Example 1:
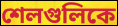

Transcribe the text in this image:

শেলগুলিকে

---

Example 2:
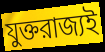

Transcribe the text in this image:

যুক্তরাজ্যই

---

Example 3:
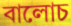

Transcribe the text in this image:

বালোচ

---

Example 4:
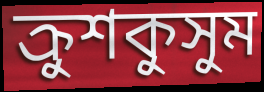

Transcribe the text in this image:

ক্রুশকুসুম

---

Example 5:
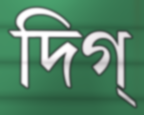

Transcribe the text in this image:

দিগ্